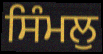
ਸਿੰਮਲੁ